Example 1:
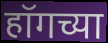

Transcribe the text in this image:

हॉगच्या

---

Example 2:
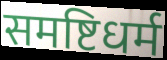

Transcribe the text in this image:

समष्टिधर्म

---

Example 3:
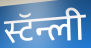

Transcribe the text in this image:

स्टॅन्ली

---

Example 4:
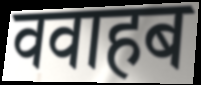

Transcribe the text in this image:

ववाहब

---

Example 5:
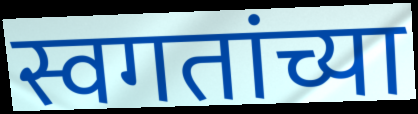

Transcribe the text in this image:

स्वगतांच्या